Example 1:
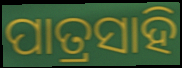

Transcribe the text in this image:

ପାତ୍ରସାହି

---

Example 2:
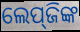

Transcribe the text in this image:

ଲେପ୍‌ଜିଙ୍କ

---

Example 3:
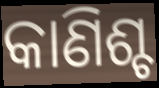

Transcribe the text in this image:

କାଣିଶ୍ଚ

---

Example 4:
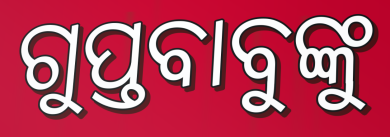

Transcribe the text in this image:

ଗୁପ୍ତବାବୁଙ୍କୁ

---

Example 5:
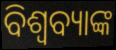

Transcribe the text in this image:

ବିଶ୍ୱବ୍ୟାଙ୍କ